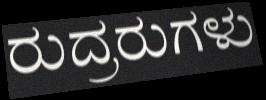
ರುದ್ರರುಗಳು